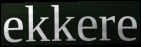
ekkere